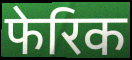
फेरिक